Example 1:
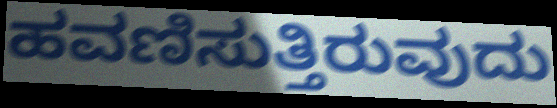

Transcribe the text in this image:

ಹವಣಿಸುತ್ತಿರುವುದು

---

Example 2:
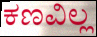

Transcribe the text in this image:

ಕಣವಿಲ್ಲ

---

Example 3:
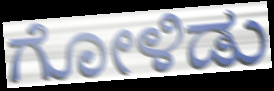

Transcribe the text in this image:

ಗೋಳಿಡು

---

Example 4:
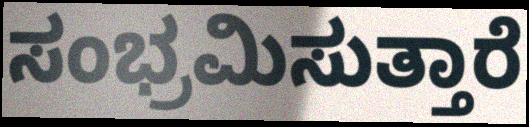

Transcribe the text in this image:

ಸಂಭ್ರಮಿಸುತ್ತಾರೆ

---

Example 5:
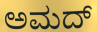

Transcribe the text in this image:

ಅಮದ್